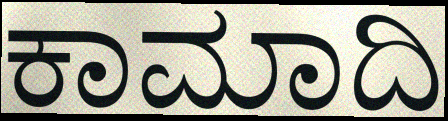
ಕಾಮಾದಿ